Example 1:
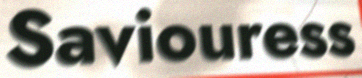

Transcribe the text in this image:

Saviouress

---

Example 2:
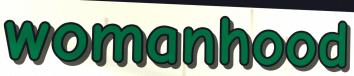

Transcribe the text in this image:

womanhood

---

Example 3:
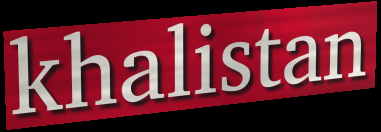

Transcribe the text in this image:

khalistan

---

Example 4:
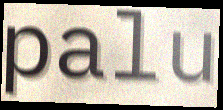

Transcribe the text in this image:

palu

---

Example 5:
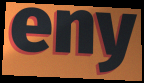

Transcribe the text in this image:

eny